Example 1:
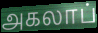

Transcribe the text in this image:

அகலாப்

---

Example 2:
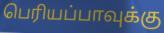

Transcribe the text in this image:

பெரியப்பாவுக்கு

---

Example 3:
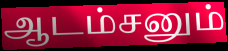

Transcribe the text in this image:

ஆடம்சனும்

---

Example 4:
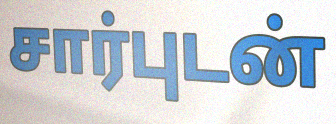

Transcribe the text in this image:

சார்புடன்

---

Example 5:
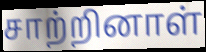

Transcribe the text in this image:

சாற்றினாள்